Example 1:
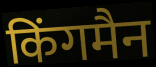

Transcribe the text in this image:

किंगमैन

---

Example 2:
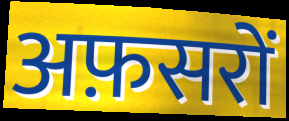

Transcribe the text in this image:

अफ़सरों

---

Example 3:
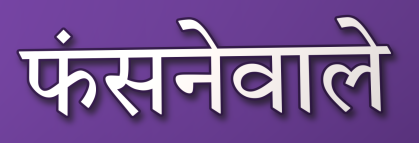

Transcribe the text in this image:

फंसनेवाले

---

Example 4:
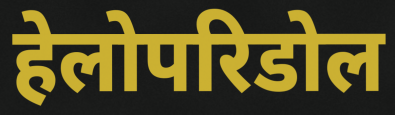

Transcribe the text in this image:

हेलोपरिडोल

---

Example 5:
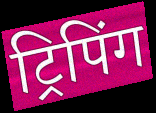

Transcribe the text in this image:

ट्रिपिंग